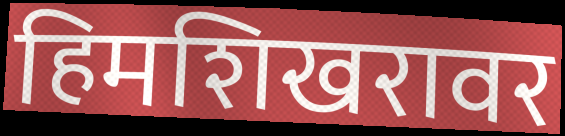
हिमशिखरावर